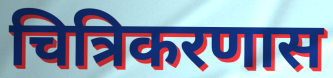
चित्रिकरणास